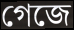
গেজে